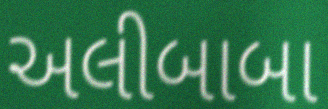
અલીબાબા